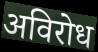
अविरोध